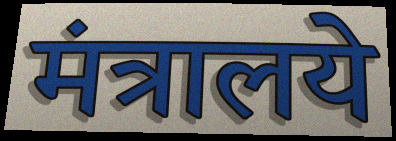
मंत्रालये